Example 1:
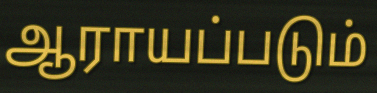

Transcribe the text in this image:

ஆராயப்படும்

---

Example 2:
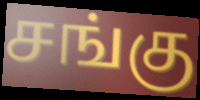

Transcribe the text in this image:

சங்கு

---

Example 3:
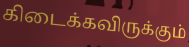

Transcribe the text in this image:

கிடைக்கவிருக்கும்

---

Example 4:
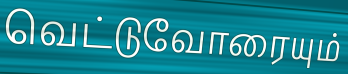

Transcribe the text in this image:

வெட்டுவோரையும்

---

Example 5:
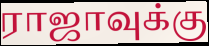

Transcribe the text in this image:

ராஜாவுக்கு